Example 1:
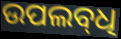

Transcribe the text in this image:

ଉପଲବ୍‌ଧି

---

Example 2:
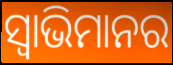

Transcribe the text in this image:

ସ୍ଵାଭିମାନର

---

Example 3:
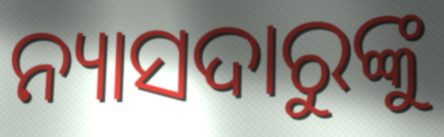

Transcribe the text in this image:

ନ୍ୟାସଦାରୁଙ୍କୁ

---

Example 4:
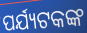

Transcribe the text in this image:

ପର୍ଯ୍ୟଟକଙ୍କ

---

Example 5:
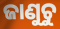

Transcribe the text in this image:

ଜାଣୁଚୁ